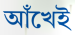
আঁখেই